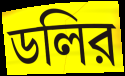
ডলির